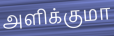
அளிக்குமா